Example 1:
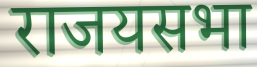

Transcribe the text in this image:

राजयसभा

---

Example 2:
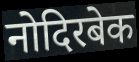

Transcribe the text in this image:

नोदिरबेक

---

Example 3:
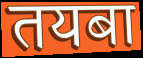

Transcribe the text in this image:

तयबा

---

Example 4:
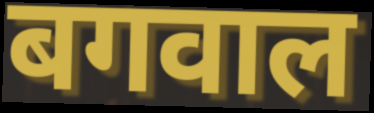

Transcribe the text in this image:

बगवाल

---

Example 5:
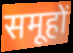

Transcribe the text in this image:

समूहों